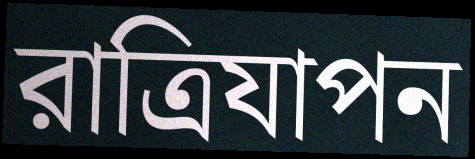
রাত্রিযাপন